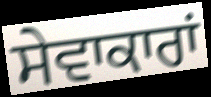
ਸੇਵਾਕਾਰਾਂ